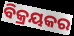
ବିକ୍ରୟକର